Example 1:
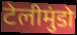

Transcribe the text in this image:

टेलीमुंडो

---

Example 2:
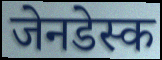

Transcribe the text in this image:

जेनडेस्क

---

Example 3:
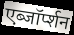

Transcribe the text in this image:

एब्जॉर्प्शन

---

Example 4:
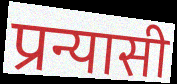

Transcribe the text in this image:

प्रन्यासी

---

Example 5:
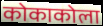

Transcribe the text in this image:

कोकाकोला